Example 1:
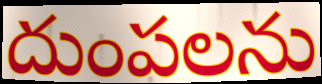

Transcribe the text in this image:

దుంపలను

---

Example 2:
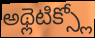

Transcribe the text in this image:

అథ్లెటిక్స్లో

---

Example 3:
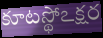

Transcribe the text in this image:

కూటస్థోఽక్షర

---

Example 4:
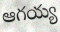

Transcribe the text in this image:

ఆగయ్య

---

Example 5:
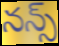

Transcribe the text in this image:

నన్స్